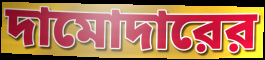
দামোদারের